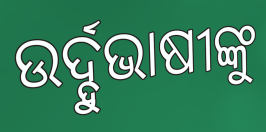
ଉର୍ଦ୍ଦୁଭାଷୀଙ୍କୁ